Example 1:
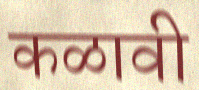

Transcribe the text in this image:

कळावी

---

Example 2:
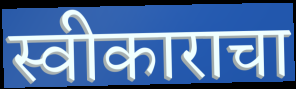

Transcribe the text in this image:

स्वीकाराचा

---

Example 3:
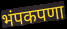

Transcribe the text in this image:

भंपकपणा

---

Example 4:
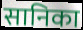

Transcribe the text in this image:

सानिका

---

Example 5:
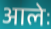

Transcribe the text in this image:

आलेः